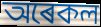
অৰেকল